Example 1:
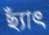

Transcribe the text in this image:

ছ্যাঁৎ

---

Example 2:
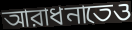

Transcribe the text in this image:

আরাধনাতেও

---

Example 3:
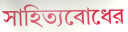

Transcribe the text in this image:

সাহিত্যবোধের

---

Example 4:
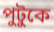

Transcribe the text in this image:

পুটুকে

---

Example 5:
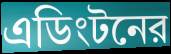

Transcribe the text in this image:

এডিংটনের